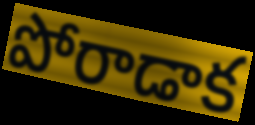
పోరాడాక